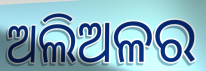
ଅଲିଅଳର